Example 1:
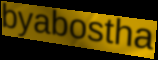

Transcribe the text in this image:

byabostha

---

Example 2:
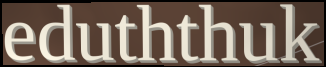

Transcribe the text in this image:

eduththuk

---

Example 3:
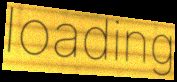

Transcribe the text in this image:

loading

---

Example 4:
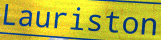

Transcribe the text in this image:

Lauriston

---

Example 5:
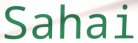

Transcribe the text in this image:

Sahai